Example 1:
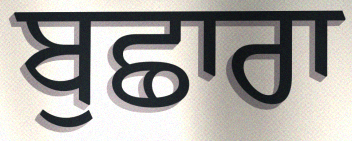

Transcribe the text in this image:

ਬੁਛਾਰਾ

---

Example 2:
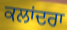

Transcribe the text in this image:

ਕਲਾਂਦਰਾ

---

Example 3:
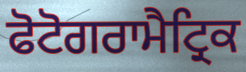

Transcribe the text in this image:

ਫੋਟੋਗਰਾਮੈਟ੍ਰਿਕ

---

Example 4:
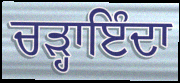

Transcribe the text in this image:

ਚੜ੍ਹਾਇੰਦਾ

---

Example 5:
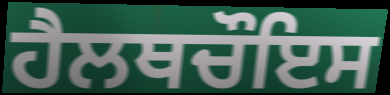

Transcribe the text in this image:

ਹੈਲਥਚੌਇਸ